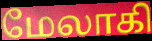
மேலாகி